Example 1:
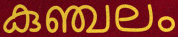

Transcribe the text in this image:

കുഞ്ചലം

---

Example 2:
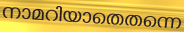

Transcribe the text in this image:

നാമറിയാതെതന്നെ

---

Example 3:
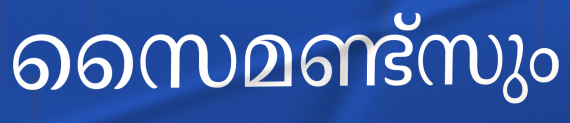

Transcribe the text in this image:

സൈമണ്ട്സും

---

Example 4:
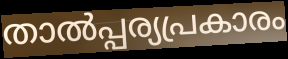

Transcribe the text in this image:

താൽപ്പര്യപ്രകാരം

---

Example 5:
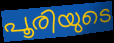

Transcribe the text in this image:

പൂരിയുടെ